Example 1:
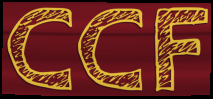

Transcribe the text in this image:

CCF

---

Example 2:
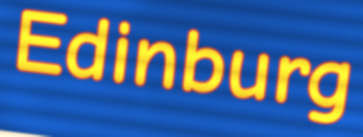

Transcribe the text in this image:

Edinburg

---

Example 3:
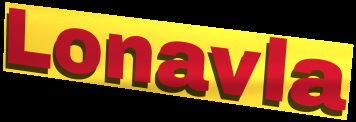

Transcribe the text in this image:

Lonavla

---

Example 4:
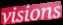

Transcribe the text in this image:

visions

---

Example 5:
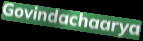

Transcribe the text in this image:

Govindachaarya